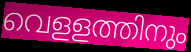
വെളളത്തിനും